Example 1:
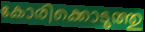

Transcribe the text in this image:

കോരിക്കൊടുത്തു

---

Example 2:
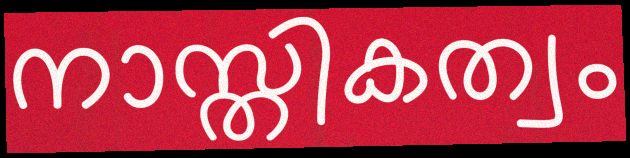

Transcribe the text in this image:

നാസ്തികത്വം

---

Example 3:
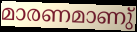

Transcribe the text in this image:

മാരണമാണു്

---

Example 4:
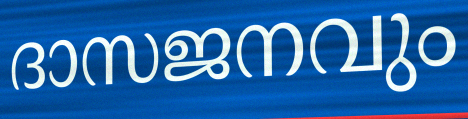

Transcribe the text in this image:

ദാസജനവും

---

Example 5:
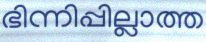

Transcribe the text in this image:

ഭിന്നിപ്പില്ലാത്ത